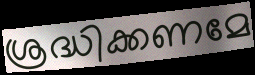
ശ്രദ്ധിക്കണമേ